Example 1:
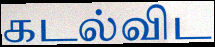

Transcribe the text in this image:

கடல்விட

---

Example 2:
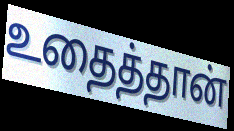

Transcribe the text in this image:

உதைத்தான்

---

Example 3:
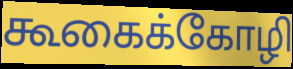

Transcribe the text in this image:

கூகைக்கோழி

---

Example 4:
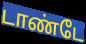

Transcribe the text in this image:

டாண்டே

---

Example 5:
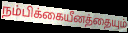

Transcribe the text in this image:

நம்பிக்கையீனத்தையும்